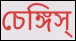
চেঙ্গিস্